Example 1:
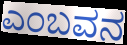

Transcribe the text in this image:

ಎಂಬವನ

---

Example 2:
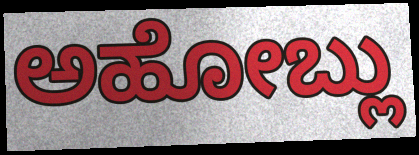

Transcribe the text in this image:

ಅಹೋಬ್ಲು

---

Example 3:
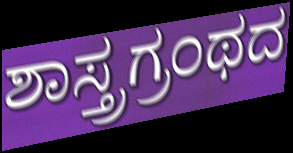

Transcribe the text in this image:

ಶಾಸ್ತ್ರಗ್ರಂಥದ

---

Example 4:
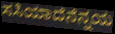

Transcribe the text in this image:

ಸಸಿಯಾದೆನೆನ್ನಯ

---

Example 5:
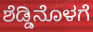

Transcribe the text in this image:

ಶೆಡ್ಡಿನೊಳಗೆ